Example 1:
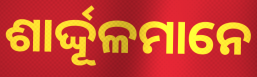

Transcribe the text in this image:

ଶାର୍ଦ୍ଦୂଳମାନେ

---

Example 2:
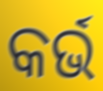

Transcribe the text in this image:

କର୍ଭ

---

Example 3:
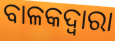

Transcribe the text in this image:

ବାଳକଦ୍ୱାରା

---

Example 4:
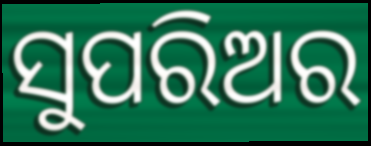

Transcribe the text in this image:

ସୁପରିଅର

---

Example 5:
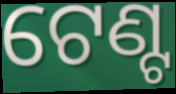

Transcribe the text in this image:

ଟେଣ୍ଟ